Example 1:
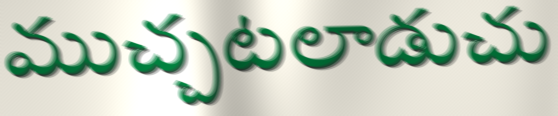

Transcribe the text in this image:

ముచ్చటలాడుచు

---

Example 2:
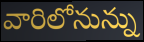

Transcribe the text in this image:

వారిలోనున్ను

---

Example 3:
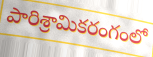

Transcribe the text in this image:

పారిశ్రామికరంగంలో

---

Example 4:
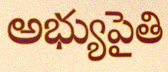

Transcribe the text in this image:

అభ్యుపైతి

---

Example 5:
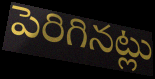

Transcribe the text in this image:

పెరిగినట్లు